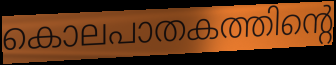
കൊലപാതകത്തിന്റെ